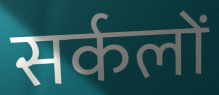
सर्कलों